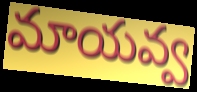
మాయవ్వ